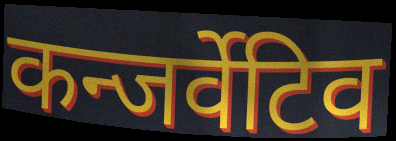
कन्जर्वेटिव